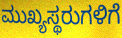
ಮುಖ್ಯಸ್ಥರುಗಳಿಗೆ